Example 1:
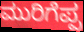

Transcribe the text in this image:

ಮುರಿಗೆಪ್ಪ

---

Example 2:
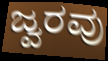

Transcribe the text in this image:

ಜ್ವರವು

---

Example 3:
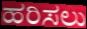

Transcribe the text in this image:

ಹರಿಸಲು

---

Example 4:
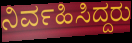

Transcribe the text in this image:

ನಿರ್ವಹಿಸಿದ್ದರು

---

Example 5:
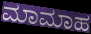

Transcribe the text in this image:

ಮಾಮಾಹ